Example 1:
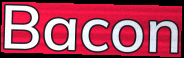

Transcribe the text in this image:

Bacon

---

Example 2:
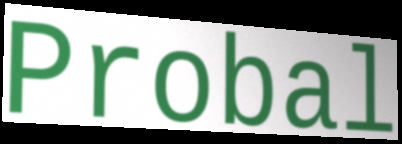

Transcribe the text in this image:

Probal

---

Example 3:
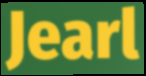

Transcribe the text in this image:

Jearl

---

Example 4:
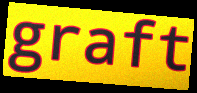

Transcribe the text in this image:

graft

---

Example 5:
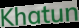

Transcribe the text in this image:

Khatun